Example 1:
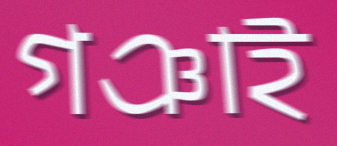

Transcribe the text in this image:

গঞাই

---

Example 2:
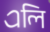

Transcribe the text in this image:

এলি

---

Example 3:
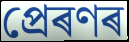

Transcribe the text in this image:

প্ৰেৰণৰ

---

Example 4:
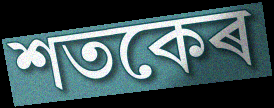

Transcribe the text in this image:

শতকেৰ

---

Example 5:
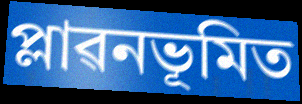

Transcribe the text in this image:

প্লাৱনভূমিত